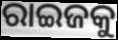
ରାଇଜକୁ